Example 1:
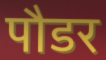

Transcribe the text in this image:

पौडर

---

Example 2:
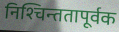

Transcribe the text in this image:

निश्चिन्ततापूर्वक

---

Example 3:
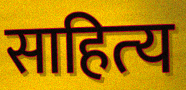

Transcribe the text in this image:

साहित्‍य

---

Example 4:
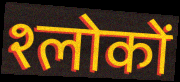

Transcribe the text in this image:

श्लोकों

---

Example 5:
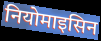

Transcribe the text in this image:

नियोमाइसिन